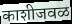
काशीजवळ